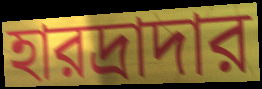
হারদ্রাদার